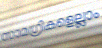
സാമഗ്രികളെല്ലാം